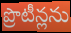
ప్రొటీన్లను